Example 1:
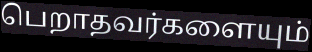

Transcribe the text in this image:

பெறாதவர்களையும்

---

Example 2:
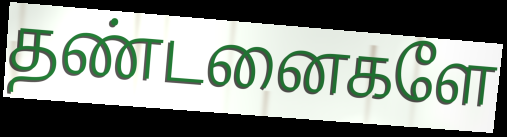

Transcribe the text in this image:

தண்டனைகளே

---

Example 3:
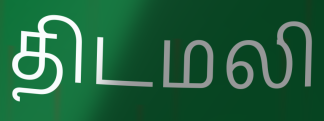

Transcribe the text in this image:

திடமலி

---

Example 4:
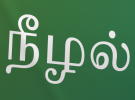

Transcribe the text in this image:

நீழல்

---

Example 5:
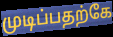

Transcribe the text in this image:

முடிப்பதற்கே